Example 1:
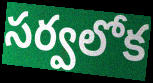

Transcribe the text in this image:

సర్వలోక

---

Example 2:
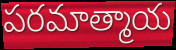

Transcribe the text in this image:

పరమాత్మాయ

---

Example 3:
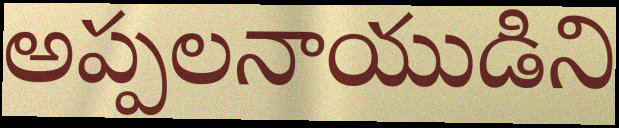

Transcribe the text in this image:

అప్పలనాయుడిని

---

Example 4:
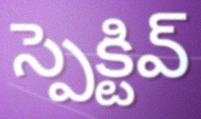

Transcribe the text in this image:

స్పెక్టివ్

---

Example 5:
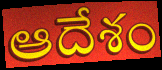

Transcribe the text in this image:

ఆదేశం